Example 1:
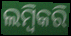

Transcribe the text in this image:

ଲମ୍ବିକରି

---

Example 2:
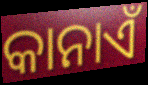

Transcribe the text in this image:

କାନାଏଁ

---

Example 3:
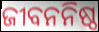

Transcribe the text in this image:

ଜୀବନନିଷ୍ଠ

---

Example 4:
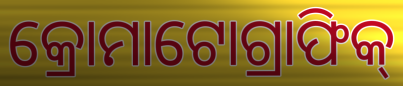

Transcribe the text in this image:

କ୍ରୋମାଟୋଗ୍ରାଫିକ୍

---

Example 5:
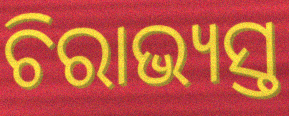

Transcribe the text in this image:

ଚିରାଭ୍ୟସ୍ତ